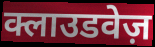
क्लाउडवेज़